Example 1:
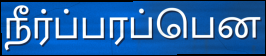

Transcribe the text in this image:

நீர்ப்பரப்பென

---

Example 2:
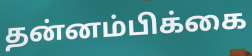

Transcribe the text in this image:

தன்னம்பிக்கை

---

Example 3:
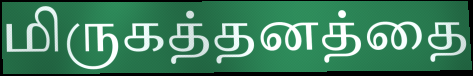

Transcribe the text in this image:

மிருகத்தனத்தை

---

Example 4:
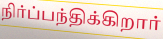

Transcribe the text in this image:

நிர்ப்பந்திக்கிறார்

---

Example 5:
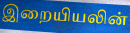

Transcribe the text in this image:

இறையியலின்